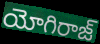
యోగిరాజ్